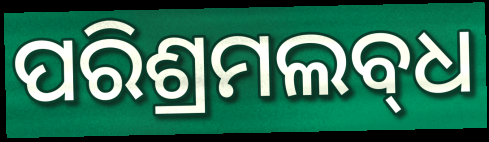
ପରିଶ୍ରମଲବ୍‍ଧ